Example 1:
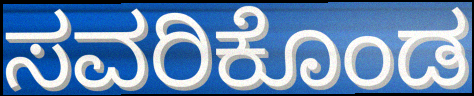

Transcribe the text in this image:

ಸವರಿಕೊಂಡ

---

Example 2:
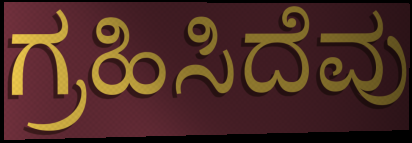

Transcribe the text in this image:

ಗ್ರಹಿಸಿದೆವು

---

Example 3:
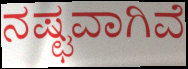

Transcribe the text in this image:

ನಷ್ಟವಾಗಿವೆ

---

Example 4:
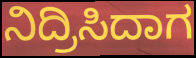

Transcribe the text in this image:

ನಿದ್ರಿಸಿದಾಗ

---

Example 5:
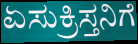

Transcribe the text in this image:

ಏಸುಕ್ರಿಸ್ತನಿಗೆ